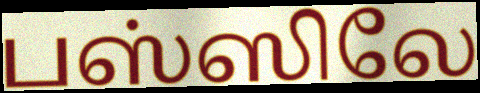
பஸ்ஸிலே